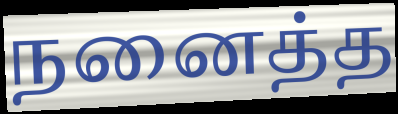
நனைத்த